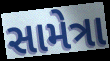
સામેત્રા